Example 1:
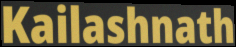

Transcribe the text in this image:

Kailashnath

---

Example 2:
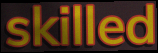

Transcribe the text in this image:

skilled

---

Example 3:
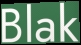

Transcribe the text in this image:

Blak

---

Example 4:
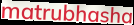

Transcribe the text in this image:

matrubhasha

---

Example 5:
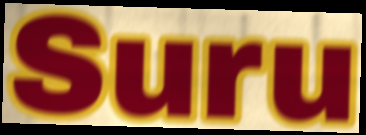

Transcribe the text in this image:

Suru